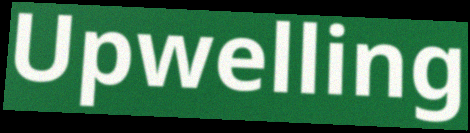
Upwelling